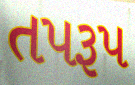
તપરૂપ